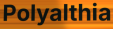
Polyalthia